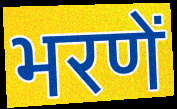
भरणें